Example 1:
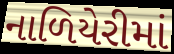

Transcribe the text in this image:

નાળિયેરીમાં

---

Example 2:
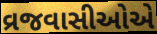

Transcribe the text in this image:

વ્રજવાસીઓએ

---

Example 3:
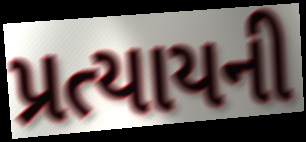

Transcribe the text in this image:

પ્રત્યાયની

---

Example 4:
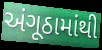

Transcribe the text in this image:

અંગૂઠામાંથી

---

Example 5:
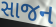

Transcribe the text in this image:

સાજન